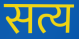
सत्य